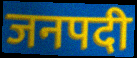
जनपदी